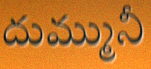
దుమ్మునీ